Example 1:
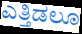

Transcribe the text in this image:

ಎತ್ತಿಡಲೂ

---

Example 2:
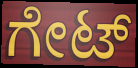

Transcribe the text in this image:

ಗೇಟ್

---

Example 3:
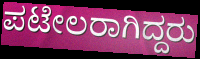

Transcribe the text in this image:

ಪಟೇಲರಾಗಿದ್ದರು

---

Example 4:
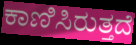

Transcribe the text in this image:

ಕಾಣಿಸಿರುತ್ತದೆ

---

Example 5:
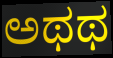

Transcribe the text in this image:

ಅಥಥ